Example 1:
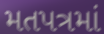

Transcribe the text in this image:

મતપત્રમાં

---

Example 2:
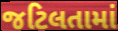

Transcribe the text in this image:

જટિલતામાં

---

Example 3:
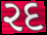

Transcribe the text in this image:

રદ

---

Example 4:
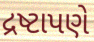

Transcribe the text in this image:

દ્રષ્ટાપણે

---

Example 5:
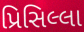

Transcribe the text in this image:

પ્રિસિલ્લા